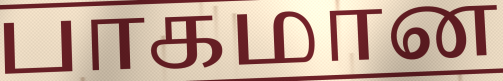
பாகமான